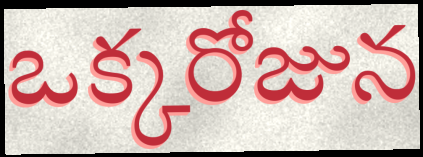
ఒక్కరోజున